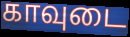
காவுடை